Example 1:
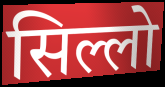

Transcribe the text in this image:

सिल्लो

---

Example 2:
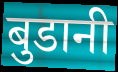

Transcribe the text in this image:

बुडानी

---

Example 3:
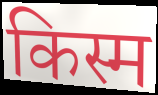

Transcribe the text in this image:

किस्म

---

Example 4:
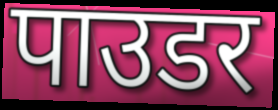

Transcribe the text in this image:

पाउडर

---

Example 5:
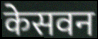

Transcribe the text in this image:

केसवन